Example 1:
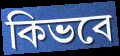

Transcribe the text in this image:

কিভবে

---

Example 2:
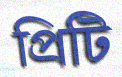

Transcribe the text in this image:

প্রিটি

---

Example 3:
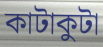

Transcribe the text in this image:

কাটাকুটা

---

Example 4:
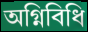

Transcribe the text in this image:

অগ্নিবিধি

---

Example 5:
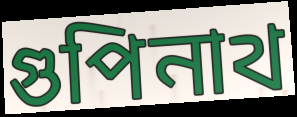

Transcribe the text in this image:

গুপিনাথ